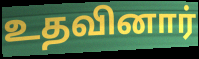
உதவினார்